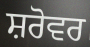
ਸ਼ਰੋਵਰ